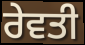
ਰੇਵਤੀ